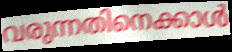
വരുന്നതിനെക്കാൾ